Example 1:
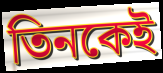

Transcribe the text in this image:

তিনকেই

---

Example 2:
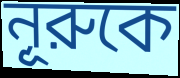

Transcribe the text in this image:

নূরুকে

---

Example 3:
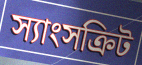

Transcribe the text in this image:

স্যাংসক্রিট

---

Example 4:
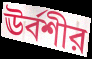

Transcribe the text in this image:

ঊর্বশীর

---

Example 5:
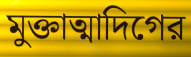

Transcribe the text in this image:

মুক্তাত্মাদিগের